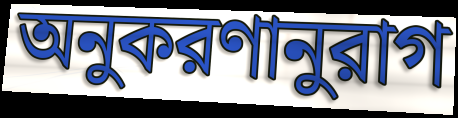
অনুকরণানুরাগ